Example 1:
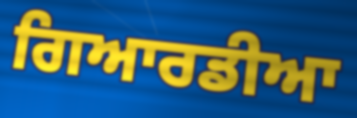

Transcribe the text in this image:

ਗਿਆਰਡੀਆ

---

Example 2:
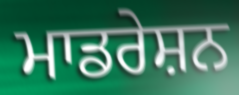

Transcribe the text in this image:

ਮਾਡਰੇਸ਼ਨ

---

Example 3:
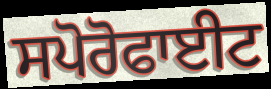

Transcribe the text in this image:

ਸਪੋਰੋਫਾਈਟ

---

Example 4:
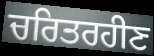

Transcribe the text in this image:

ਚਰਿਤਰਹੀਣ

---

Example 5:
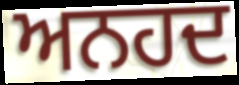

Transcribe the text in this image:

ਅਨਹਦ